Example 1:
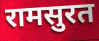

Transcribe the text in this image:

रामसुरत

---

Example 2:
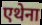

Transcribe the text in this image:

एथेना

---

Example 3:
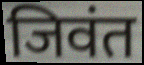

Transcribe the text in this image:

जिवंत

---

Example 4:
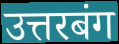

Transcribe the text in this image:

उत्तरबंग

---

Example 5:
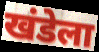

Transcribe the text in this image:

खंडेला